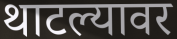
थाटल्यावर